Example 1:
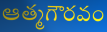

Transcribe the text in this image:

ఆత్మగౌరవం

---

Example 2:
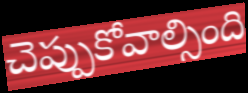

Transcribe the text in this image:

చెప్పుకోవాల్సింది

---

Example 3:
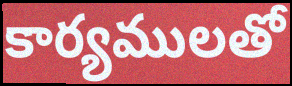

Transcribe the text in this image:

కార్యములతో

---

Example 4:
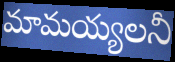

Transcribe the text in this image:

మామయ్యలనీ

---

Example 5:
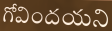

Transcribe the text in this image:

గోవిందయని